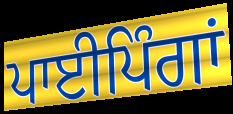
ਪਾਈਪਿੰਗਾਂ